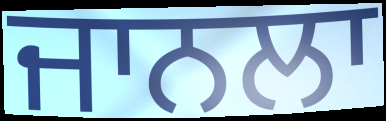
ਜਾਨਲਾ